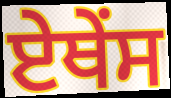
ਏਥੇੰਸ